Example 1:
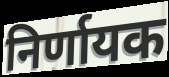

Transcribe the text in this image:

निर्णायक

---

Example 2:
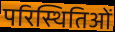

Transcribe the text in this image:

परिस्थितिओं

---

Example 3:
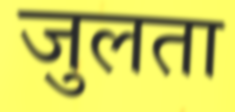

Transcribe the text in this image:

जुलता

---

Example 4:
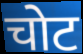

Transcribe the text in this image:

चोट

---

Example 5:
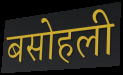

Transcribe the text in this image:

बसोहली